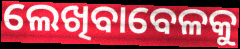
ଲେଖିବାବେଳକୁ